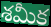
శమీక